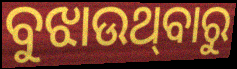
ବୁଝାଉଥ୍‌ବାରୁ